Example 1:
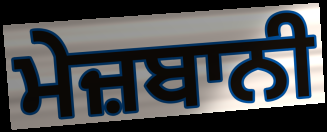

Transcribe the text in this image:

ਮੇਜ਼ਬਾਨੀ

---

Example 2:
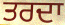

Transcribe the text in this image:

ਤਰਦਾ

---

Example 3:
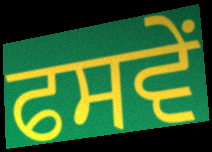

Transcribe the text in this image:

ਫਸਵੇਂ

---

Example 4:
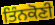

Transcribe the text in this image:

ਤਿੰਨਕੋਣੀ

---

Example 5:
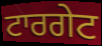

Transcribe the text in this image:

ਟਾਰਗੇਟ